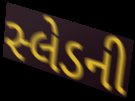
સ્લેડની